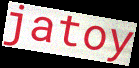
jatoy